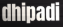
dhipadi